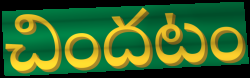
చిందటం